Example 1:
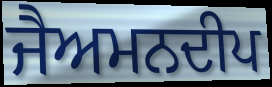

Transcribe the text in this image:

ਜੈਅਮਨਦੀਪ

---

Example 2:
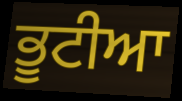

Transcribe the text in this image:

ਭੂਟੀਆ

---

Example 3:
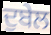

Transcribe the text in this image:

ਦੁਬੇਲ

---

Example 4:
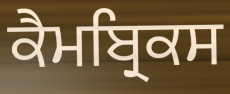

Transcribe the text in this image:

ਕੈਮਬ੍ਰਿਕਸ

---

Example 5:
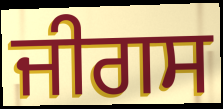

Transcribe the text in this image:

ਜੀਗਸ